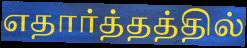
எதார்த்தத்தில்